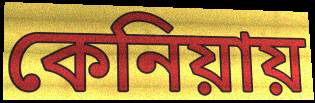
কেনিয়ায়